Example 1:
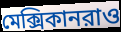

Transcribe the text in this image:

মেক্সিকানরাও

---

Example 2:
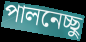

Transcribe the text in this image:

পালনেচ্ছু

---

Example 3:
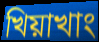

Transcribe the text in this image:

খিয়াখাং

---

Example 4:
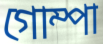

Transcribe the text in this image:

গোম্পা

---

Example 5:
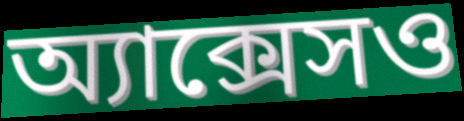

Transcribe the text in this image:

অ্যাক্সেসও